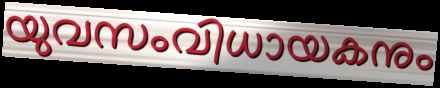
യുവസംവിധായകനും